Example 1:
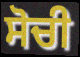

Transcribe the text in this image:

ਸੋਚੀ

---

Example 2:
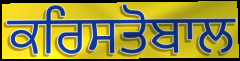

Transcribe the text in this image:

ਕਰਿਸਤੋਬਾਲ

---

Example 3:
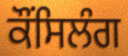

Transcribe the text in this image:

ਕੌਂਸਿਲੰਗ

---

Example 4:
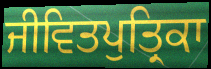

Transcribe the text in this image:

ਜੀਵਿਤਪੁਤ੍ਰਿਕਾ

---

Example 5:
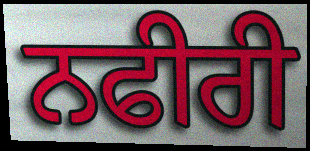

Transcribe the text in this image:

ਨਫੀਰੀ